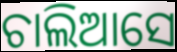
ଚାଲିଆସେ